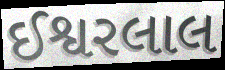
ઈશ્વરલાલ